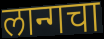
लान्गचा